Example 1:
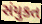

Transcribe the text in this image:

સંયુકત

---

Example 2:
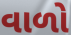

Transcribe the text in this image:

વાળો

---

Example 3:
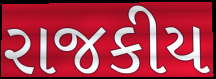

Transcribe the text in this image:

રાજકીય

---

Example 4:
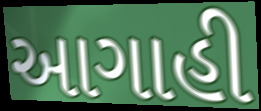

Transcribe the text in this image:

આગાહી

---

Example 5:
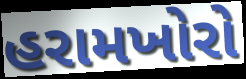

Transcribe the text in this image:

હરામખોરો